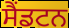
ਸੈਂਡਟਨ